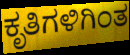
ಕೃತಿಗಳಿಗಿಂತ